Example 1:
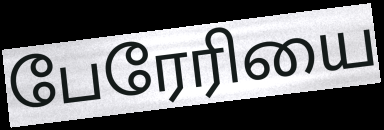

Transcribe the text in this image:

பேரேரியை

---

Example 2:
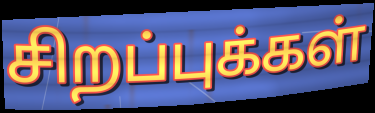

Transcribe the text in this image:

சிறப்புக்கள்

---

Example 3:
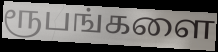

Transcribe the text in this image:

ரூபங்களை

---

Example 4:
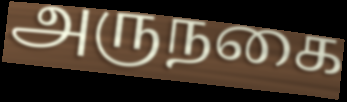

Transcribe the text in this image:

அருநகை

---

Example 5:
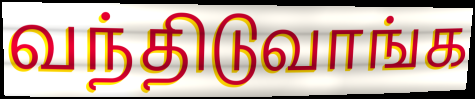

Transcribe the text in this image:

வந்திடுவாங்க